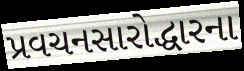
પ્રવચનસારોદ્ધારના